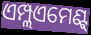
ଏମ୍ପ୍ଲଏମେଣ୍ଟ୍